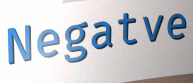
Negatve